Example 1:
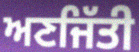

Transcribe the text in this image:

ਅਣਜਿੱਤੀ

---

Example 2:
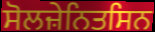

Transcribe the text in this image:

ਸੋਲਜ਼ੇਨਿਤਸਿਨ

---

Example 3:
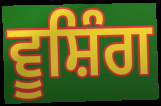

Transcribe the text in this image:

ਵੂਸ਼ਿੰਗ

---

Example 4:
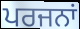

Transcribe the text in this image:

ਪਰਜਨਾਂ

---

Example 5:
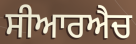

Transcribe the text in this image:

ਸੀਆਰਐਚ